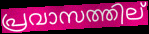
പ്രവാസത്തില്